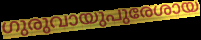
ഗുരുവായുപുരേശായ